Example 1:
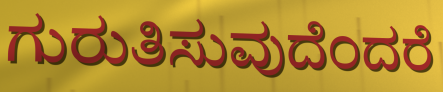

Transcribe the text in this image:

ಗುರುತಿಸುವುದೆಂದರೆ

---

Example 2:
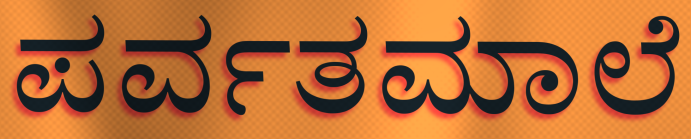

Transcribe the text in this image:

ಪರ್ವತಮಾಲೆ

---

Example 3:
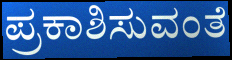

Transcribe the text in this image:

ಪ್ರಕಾಶಿಸುವಂತೆ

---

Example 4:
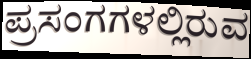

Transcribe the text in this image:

ಪ್ರಸಂಗಗಳಲ್ಲಿರುವ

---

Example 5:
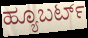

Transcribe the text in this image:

ಹ್ಯೂಬರ್ಟ್